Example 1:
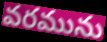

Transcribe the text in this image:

వరమును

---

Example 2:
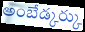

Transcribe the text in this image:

అంబేడ్కర్కు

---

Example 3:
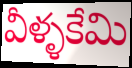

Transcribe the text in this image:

వీళ్ళకేమి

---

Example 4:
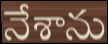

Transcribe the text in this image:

నేశాను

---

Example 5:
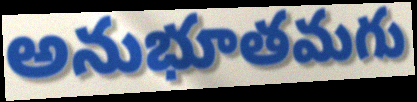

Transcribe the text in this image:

అనుభూతమగు